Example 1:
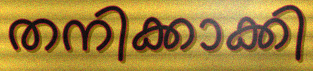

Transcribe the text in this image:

തനിക്കാക്കി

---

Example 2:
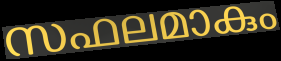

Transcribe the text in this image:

സഫലമാകും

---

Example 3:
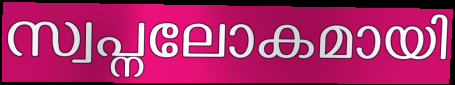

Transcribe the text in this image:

സ്വപ്നലോകമായി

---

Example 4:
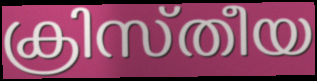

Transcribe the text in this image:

ക്രിസ്‌തീയ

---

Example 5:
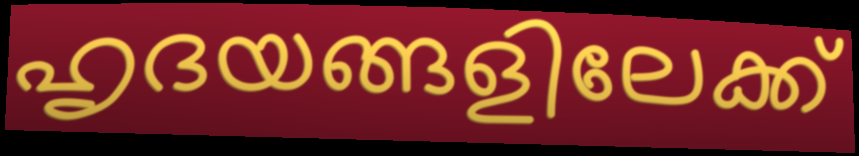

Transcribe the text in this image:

ഹൃദയങ്ങളിലേക്ക്